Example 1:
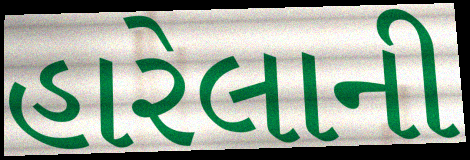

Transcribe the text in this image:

હારેલાની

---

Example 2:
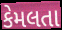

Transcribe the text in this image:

કેમલતા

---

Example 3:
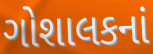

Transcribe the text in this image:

ગોશાલકનાં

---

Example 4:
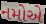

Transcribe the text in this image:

નમોએ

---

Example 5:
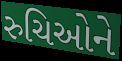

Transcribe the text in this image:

રુચિઓને